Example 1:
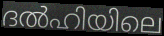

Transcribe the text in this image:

ദൽഹിയിലെ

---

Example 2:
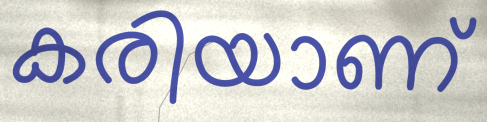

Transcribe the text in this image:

കരിയാണ്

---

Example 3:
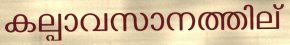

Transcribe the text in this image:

കല്പാവസാനത്തില്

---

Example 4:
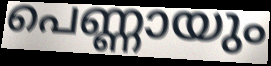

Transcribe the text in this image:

പെണ്ണായും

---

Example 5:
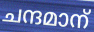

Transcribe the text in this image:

ചന്ദമാന്